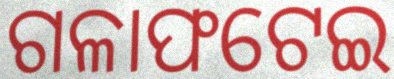
ଗଳାଫଟେଇ